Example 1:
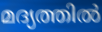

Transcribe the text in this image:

മദ്യത്തിൽ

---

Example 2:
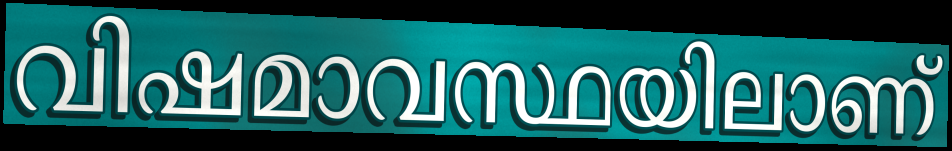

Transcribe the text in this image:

വിഷമാവസ്ഥയിലാണ്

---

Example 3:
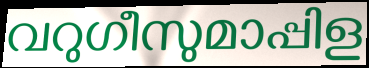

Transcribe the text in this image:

വറുഗീസുമാപ്പിള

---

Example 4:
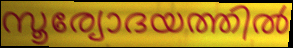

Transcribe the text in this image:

സൂര്യോദയത്തിൽ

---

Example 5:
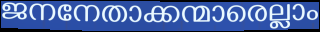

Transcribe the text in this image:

ജനനേതാക്കന്മാരെല്ലാം